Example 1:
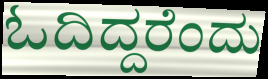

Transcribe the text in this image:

ಓದಿದ್ದರೆಂದು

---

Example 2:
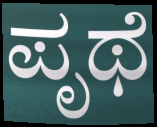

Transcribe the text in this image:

ಪೃಥೆ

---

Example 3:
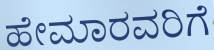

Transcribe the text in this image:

ಹೇಮಾರವರಿಗೆ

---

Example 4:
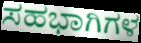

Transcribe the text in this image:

ಸಹಭಾಗಿಗಳ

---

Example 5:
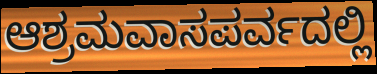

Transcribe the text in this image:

ಆಶ್ರಮವಾಸಪರ್ವದಲ್ಲಿ